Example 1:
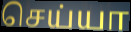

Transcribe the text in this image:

செய்யா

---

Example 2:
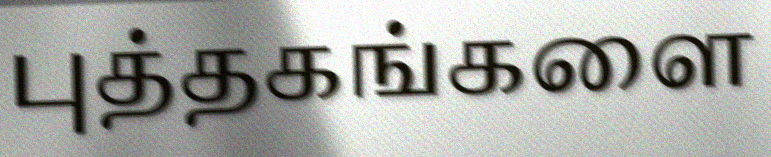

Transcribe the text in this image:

புத்தகங்களை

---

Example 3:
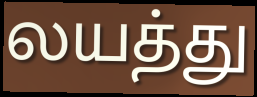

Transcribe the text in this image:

லயத்து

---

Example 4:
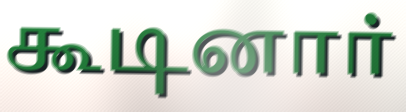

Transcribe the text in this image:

கூடினார்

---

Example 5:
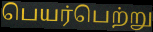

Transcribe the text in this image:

பெயர்பெற்று